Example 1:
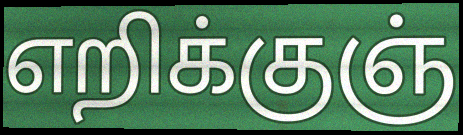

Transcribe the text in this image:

எறிக்குஞ்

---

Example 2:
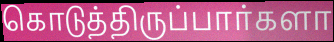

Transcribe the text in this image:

கொடுத்திருப்பார்களா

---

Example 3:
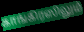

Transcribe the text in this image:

காங்கிரஸிலும்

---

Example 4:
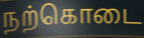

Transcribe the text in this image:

நற்கொடை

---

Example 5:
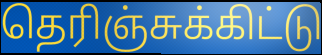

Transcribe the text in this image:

தெரிஞ்சுக்கிட்டு